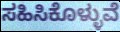
ಸಹಿಸಿಕೊಳ್ಳುವೆ